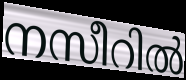
നസീറിൽ